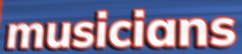
musicians